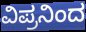
ವಿಪ್ರನಿಂದ